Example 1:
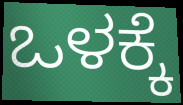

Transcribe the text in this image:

ಒಳಕ್ಕೆ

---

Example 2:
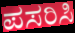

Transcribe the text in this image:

ಪಸರಿಸಿ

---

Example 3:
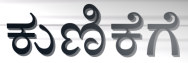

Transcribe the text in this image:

ಕುಣಿಕೆಗೆ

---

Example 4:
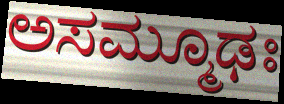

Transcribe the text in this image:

ಅಸಮ್ಮೂಢಃ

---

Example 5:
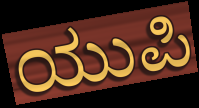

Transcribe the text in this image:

ಯುಪಿ